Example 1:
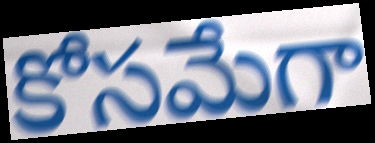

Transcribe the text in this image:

కోసమేగా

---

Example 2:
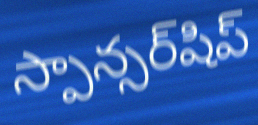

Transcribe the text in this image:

స్పాన్సర్‌షిప్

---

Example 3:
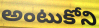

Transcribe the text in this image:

అంటుకోని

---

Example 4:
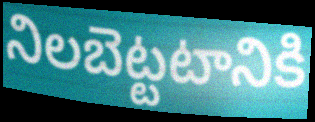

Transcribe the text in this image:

నిలబెట్టటానికి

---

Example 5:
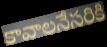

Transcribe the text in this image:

కావాలనేసరికి